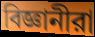
বিজ্ঞানীরা